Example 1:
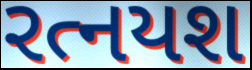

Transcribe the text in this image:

રત્નયશ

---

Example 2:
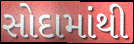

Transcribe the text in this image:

સોદામાંથી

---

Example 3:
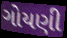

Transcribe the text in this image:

ગોયણી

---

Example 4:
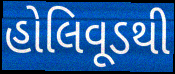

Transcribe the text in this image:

હોલિવૂડથી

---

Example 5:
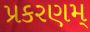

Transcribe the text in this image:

પ્રકરણમ્